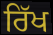
ਰਿੱਖ